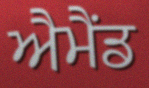
ਐਮੈਂਡ